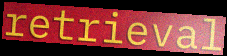
retrieval